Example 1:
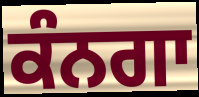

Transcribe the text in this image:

ਕੰਨਗਾ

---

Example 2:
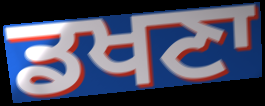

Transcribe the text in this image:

ਡਖਣਾ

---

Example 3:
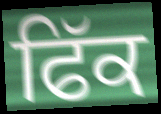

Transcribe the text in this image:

ਫਿੱਕ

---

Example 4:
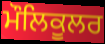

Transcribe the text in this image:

ਮੌਲਿਕੂਲਰ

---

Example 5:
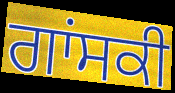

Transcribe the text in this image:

ਗਾਂਸਕੀ